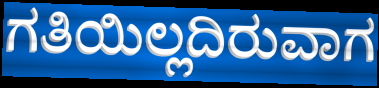
ಗತಿಯಿಲ್ಲದಿರುವಾಗ